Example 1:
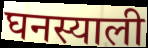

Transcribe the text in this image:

घनस्याली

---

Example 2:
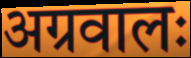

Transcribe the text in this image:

अग्रवालः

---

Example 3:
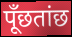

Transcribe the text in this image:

पूँछतांछ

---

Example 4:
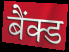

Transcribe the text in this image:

बैंक्ड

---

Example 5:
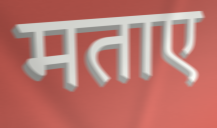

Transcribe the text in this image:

मताए